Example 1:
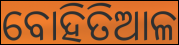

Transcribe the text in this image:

ବୋହିତିଆଳ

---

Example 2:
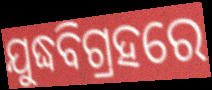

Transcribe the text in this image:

ଯୁଦ୍ଧବିଗ୍ରହରେ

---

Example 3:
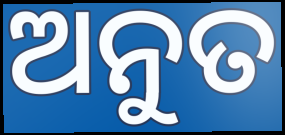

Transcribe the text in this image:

ଅନୁତ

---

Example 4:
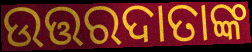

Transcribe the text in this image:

ଉତ୍ତରଦାତାଙ୍କ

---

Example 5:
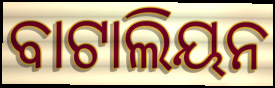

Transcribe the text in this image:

ବାଟାଲିୟନ